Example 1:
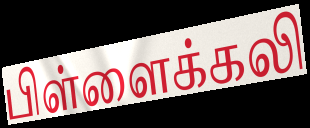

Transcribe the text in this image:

பிள்ளைக்கலி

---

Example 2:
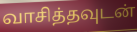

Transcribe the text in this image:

வாசித்தவுடன்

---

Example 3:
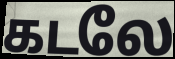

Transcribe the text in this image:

கடலே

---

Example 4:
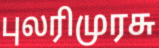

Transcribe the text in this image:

புலரிமுரசு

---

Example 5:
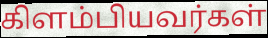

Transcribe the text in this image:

கிளம்பியவர்கள்